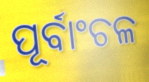
ପୂର୍ବାଂଚଳ